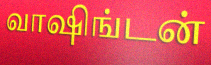
வாஷிங்டன்